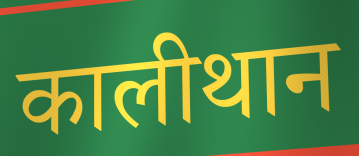
कालीथान